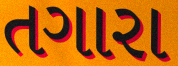
તગારા